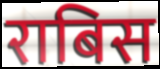
राबिस